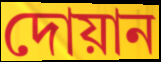
দোয়ান